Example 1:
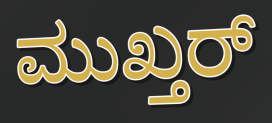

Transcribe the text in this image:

ಮುಖ್ತರ್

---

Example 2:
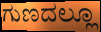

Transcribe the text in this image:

ಗುಣದಲ್ಲೂ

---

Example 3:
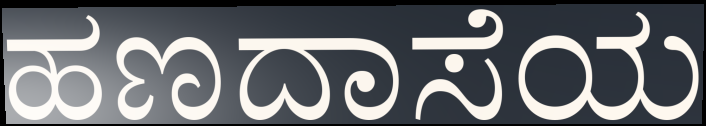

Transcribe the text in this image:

ಹಣದಾಸೆಯ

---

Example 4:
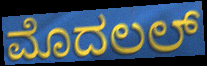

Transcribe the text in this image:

ಮೊದಲಲ್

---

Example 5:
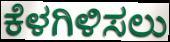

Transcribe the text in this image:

ಕೆಳಗಿಳಿಸಲು